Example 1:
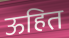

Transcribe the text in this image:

ऊहित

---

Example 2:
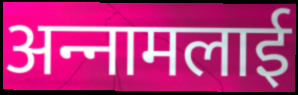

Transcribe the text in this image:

अन्‍नामलाई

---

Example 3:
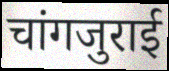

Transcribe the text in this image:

चांगजुराई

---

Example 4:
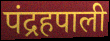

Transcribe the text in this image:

पंद्रहपाली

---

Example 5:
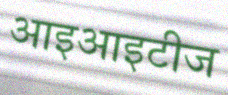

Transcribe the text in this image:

आइआइटीज